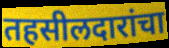
तहसीलदारांचा